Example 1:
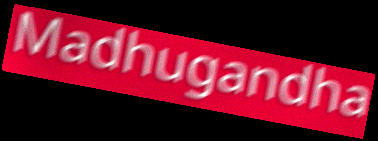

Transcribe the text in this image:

Madhugandha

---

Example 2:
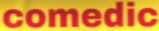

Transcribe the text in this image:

comedic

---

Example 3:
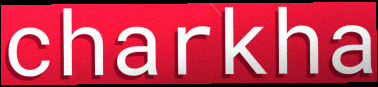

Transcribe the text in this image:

charkha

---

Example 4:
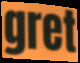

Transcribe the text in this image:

gret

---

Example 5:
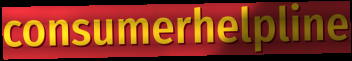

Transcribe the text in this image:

consumerhelpline